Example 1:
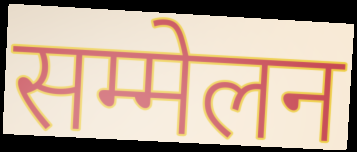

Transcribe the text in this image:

सम्मेलन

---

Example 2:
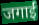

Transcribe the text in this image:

जगाईं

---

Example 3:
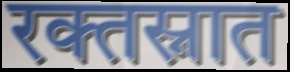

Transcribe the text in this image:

रक्तस्नात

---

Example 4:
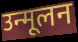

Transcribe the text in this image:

उन्मूलन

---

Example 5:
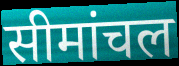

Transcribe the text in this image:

सीमांचल